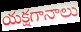
యక్షగానాలు